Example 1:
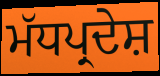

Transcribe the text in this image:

ਮੱਧਪ੍ਰਦੇਸ਼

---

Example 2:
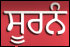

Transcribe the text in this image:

ਸੂਰਨੰ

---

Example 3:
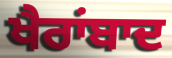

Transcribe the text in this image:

ਖੈਰਾਂਬਾਦ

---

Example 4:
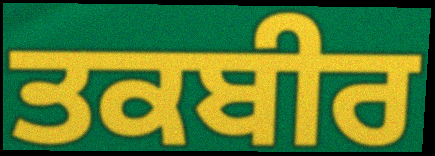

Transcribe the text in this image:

ਤਕਬੀਰ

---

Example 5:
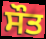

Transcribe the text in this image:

ਸੌਤ